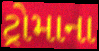
ટ્રોમાના